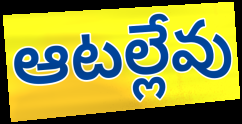
ఆటల్లేవు